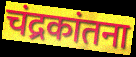
चंद्रकांतना